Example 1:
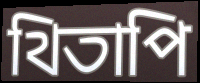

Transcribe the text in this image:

থিতাপি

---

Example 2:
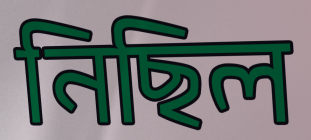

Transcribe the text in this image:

নিছিল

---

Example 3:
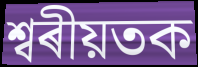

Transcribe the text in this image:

শ্বৰীয়তক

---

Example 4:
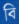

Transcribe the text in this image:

বি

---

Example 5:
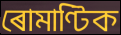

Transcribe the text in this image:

ৰোমাণ্টিক